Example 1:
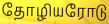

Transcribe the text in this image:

தோழியரோடு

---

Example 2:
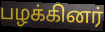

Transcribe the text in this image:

பழக்கினர்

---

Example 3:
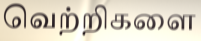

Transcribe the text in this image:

வெற்றிகளை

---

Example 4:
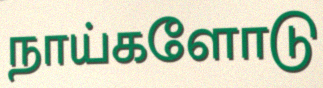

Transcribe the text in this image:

நாய்களோடு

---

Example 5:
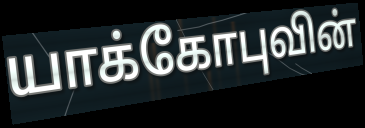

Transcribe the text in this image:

யாக்கோபுவின்